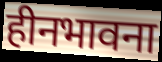
हीनभावना